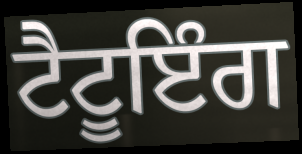
ਟੈਟੂਇੰਗ